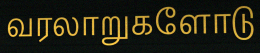
வரலாறுகளோடு